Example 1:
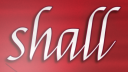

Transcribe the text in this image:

shall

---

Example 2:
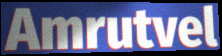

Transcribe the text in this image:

Amrutvel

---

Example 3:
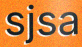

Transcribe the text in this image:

sjsa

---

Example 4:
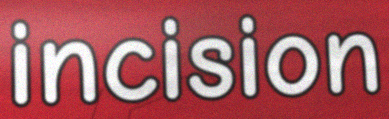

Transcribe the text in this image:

incision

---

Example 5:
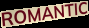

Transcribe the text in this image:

ROMANTIC